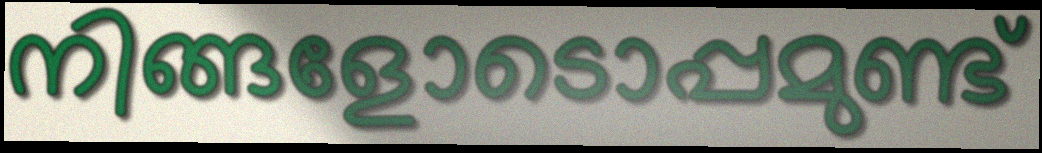
നിങ്ങളോടൊപ്പമുണ്ട്